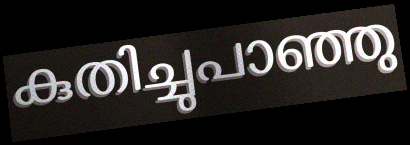
കുതിച്ചുപാഞ്ഞു